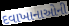
દવાખાનાઓની